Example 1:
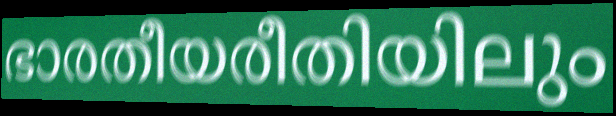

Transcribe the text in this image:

ഭാരതീയരീതിയിലും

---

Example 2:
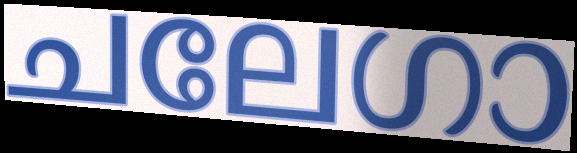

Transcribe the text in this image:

ചലേഗാ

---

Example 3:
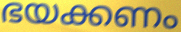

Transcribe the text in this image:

ഭയക്കണം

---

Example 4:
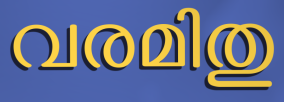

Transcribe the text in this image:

വരമിതു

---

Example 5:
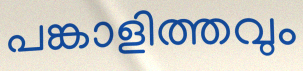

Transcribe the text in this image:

പങ്കാളിത്തവും